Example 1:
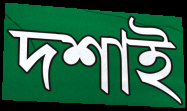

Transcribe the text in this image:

দশাই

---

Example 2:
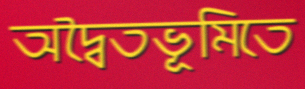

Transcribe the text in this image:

অদ্বৈতভূমিতে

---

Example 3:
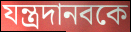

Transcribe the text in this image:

যন্ত্রদানবকে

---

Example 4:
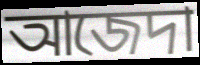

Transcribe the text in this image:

আজেদা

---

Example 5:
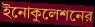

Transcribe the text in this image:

ইনোকুলেশনের